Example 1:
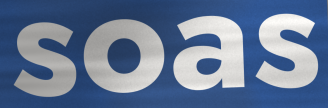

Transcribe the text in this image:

soas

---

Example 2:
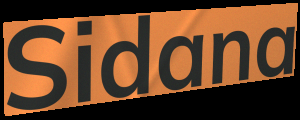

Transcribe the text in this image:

Sidana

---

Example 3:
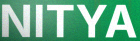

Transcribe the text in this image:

NITYA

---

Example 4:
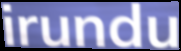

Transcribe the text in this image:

irundu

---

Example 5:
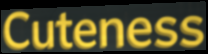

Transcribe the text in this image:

Cuteness